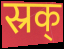
स्रक्